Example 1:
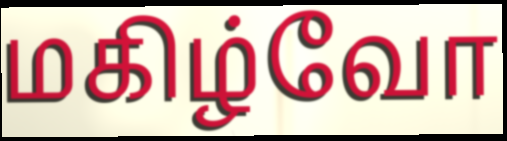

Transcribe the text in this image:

மகிழ்வோ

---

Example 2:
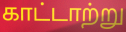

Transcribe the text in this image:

காட்டாற்று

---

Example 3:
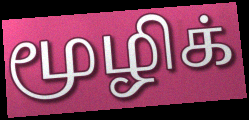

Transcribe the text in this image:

மூழிக்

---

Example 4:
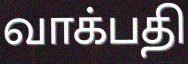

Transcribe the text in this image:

வாக்பதி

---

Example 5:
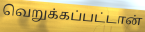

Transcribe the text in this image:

வெறுக்கப்பட்டான்